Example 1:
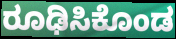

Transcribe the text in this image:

ರೂಢಿಸಿಕೊಂಡ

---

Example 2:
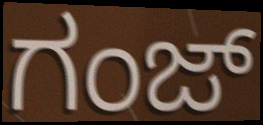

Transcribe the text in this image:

ಗಂಜ್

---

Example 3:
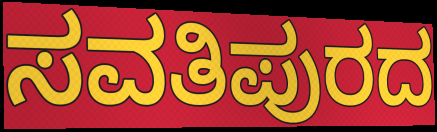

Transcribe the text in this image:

ಸವತಿಪುರದ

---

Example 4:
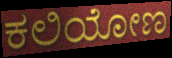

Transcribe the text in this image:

ಕಲಿಯೋಣ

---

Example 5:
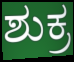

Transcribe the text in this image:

ಶುಕ್ರ